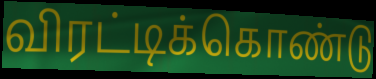
விரட்டிக்கொண்டு